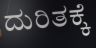
ದುರಿತಕ್ಕೆ